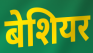
बेशियर